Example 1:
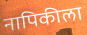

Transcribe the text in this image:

नापिकीला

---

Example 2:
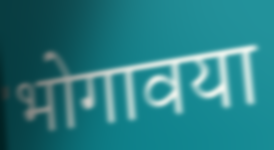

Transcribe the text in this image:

भोगावया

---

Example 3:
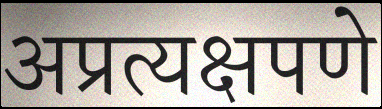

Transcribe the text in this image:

अप्रत्यक्षपणे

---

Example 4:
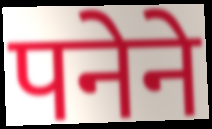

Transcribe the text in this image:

पनेने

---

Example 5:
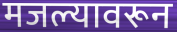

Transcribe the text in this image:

मजल्यावरून